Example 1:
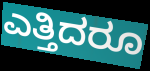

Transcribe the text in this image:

ಎತ್ತಿದರೂ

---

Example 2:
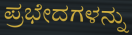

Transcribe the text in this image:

ಪ್ರಭೇದಗಳನ್ನು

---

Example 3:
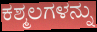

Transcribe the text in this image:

ಕಶ್ಮಲಗಳನ್ನು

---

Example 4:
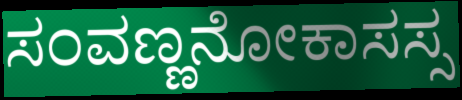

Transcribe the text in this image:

ಸಂವಣ್ಣನೋಕಾಸಸ್ಸ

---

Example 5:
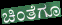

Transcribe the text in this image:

ಚಿಂತೆಗೂ